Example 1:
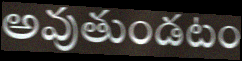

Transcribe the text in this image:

అవుతుండటం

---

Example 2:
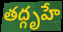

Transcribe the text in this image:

తద్గృహే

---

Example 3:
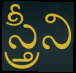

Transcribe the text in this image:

స్త్రీని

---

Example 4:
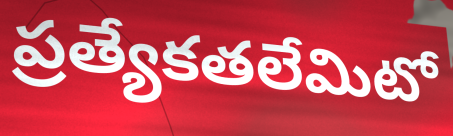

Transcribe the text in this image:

ప్రత్యేకతలేమిటో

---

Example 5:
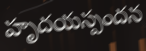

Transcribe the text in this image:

హృదయస్పందన